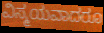
ವಿಸ್ಮಯವಾದರೂ